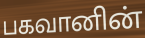
பகவானின்